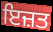
ਇਜ਼ਤ